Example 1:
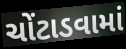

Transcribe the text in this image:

ચોંટાડવામાં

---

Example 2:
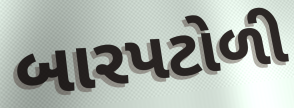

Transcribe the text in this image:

બારપટોળી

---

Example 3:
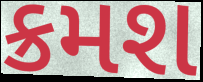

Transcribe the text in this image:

ક્રમશ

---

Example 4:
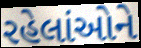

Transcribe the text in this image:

રહેલાંઓને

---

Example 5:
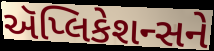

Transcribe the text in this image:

ઍપ્લિકેશન્સને